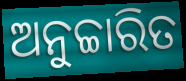
ଅନୁଚ୍ଚାରିତ